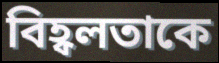
বিহ্বলতাকে